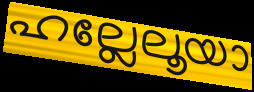
ഹല്ലേലൂയാ